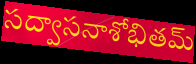
సద్వాసనాశోభితమ్